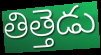
తిత్తెడు